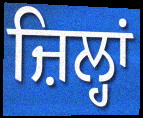
ਜ਼ਿਲ੍ਹਾਂ